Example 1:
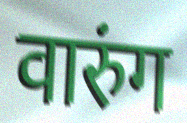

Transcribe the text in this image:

वारुंग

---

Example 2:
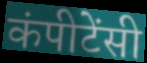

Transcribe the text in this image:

कंपीटेंसी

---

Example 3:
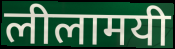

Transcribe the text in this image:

लीलामयी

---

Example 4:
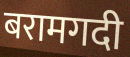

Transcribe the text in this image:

बरामगदी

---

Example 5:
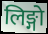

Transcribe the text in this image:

लिङ्गो